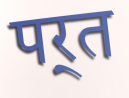
पर्त